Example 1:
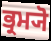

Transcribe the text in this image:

ਭ੍ਰਮ੍ਯੋ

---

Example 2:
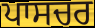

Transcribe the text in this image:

ਪਾਸਚਰ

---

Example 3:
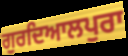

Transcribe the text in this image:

ਗੁਰਦਿਆਲਪੁਰਾ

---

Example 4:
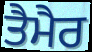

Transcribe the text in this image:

ਤੈਮੈਰ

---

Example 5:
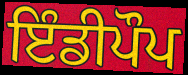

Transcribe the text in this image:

ਇੰਡੀਪੌਪ